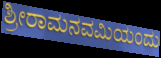
ಶ್ರೀರಾಮನವಮಿಯಂದು